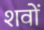
शवों